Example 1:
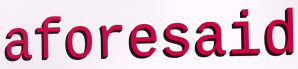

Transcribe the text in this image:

aforesaid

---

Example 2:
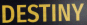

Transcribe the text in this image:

DESTINY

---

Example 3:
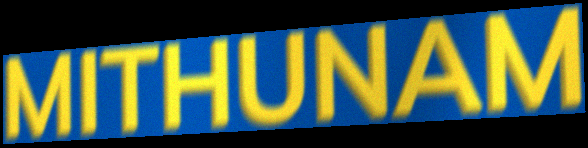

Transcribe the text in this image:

MITHUNAM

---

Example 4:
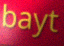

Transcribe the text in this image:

bayt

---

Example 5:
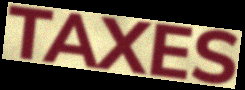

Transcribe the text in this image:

TAXES